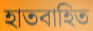
হাতবাহিত